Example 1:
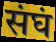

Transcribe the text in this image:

संघं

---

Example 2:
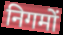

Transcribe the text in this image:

निगमों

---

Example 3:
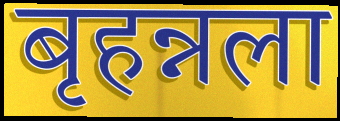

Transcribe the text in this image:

बृहन्नला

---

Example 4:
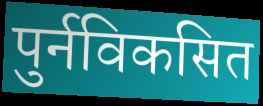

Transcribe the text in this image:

पुर्नविकसित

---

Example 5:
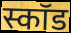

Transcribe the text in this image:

स्कॉड